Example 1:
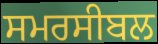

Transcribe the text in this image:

ਸਮਰਸੀਬਲ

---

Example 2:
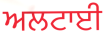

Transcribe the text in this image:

ਅਲਟਾਈ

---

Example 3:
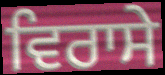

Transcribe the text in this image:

ਵਿਰਾਸੇ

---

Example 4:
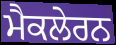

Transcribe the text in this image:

ਮੈਕਲੇਰਨ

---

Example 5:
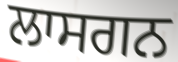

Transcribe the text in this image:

ਲਾਸਗਨ